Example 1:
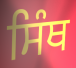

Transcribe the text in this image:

ਸਿੰਥ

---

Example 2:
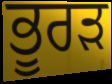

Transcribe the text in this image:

ਭੂਰੜ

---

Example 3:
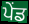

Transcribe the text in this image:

ਪੇਂਡ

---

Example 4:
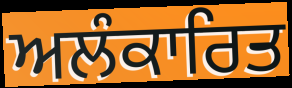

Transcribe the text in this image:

ਅਲੰਕਾਰਿਤ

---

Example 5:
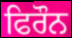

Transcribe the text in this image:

ਫਿਰੌਨ